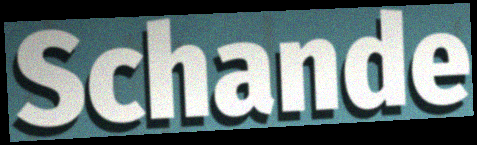
Schande